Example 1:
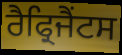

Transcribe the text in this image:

ਰੈਫ੍ਰਿਜੈਂਟਸ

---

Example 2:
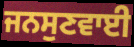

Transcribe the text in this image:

ਜਨਸੁਣਵਾਈ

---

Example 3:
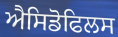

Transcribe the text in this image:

ਐਸਿਡੋਫਿਲਸ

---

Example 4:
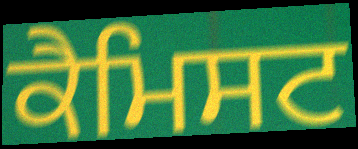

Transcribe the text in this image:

ਕੈਮਿਸਟ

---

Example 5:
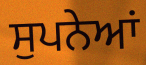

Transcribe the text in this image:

ਸੁਪਨੇਆਂ